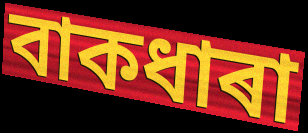
বাকধাৰা